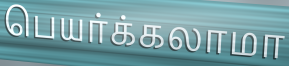
பெயர்க்கலாமா